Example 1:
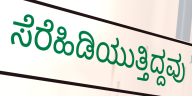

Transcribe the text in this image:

ಸೆರೆಹಿಡಿಯುತ್ತಿದ್ದವು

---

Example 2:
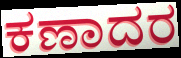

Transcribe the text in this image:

ಕಣಾದರ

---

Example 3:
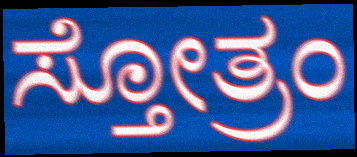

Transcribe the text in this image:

ಸ್ತೋತ್ರಂ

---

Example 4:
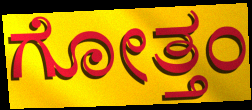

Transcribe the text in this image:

ಗೋತ್ತಂ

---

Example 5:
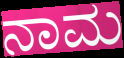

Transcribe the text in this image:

ನಾಮ